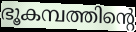
ഭൂകമ്പത്തിന്റെ